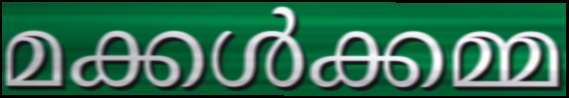
മക്കൾക്കമ്മ